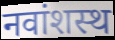
नवांशस्थ